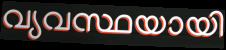
വ്യവസ്ഥയായി